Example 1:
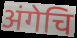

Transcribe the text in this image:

अंगेचि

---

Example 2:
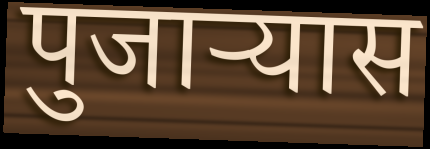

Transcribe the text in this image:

पुजाऱ्यास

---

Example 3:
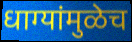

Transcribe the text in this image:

धाग्यांमुळेच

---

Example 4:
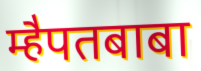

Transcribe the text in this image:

म्हैपतबाबा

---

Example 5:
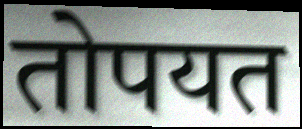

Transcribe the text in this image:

तोपयत